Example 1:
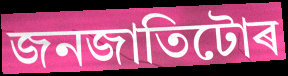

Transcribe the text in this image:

জনজাতিটোৰ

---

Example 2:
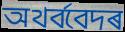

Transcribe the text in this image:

অথৰ্ববেদৰ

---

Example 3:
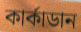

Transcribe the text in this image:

কাৰ্কাডান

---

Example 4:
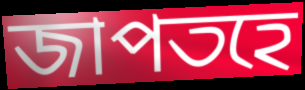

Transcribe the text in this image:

জাপতহে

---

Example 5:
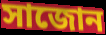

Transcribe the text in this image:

সাজোন